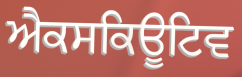
ਐਕਸਕਿਊਟਿਵ